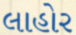
લાહોર